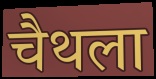
चैथला